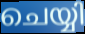
ചെയ്യി